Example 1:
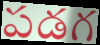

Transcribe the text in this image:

పడగ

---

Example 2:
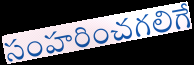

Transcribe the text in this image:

సంహరించగలిగే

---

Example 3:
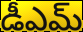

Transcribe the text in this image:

డీఎమ్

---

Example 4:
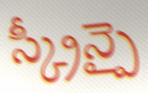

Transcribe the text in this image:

స్క్రీన్పై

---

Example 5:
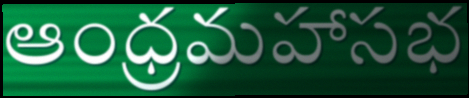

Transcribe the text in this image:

ఆంధ్రమహాసభ